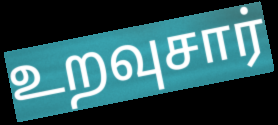
உறவுசார்